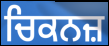
ਚਿਕਨਜ਼